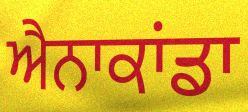
ਐਨਾਕਾਂਡਾ